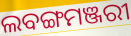
ଲବଙ୍ଗମଞ୍ଜରୀ